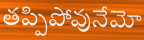
తప్పిపోవునేమో